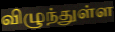
விழுந்துள்ள